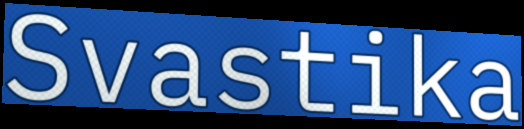
Svastika